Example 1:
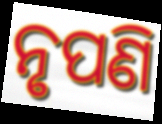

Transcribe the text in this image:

ନୃପଣି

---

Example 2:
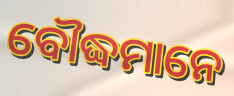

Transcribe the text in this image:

ବୌଦ୍ଧମାନେ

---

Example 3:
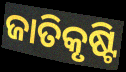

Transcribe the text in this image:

ଜାତିକୃଷ୍ଟି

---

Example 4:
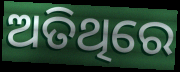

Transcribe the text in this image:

ଅତିଥିରେ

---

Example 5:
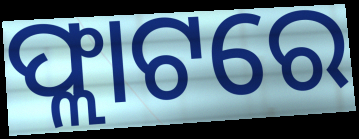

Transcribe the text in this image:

ଫ୍ଲାଟରେ